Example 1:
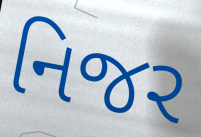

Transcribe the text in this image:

નિજર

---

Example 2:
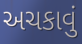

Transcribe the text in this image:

અચકાવું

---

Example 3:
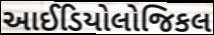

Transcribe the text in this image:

આઈડિયોલોજિકલ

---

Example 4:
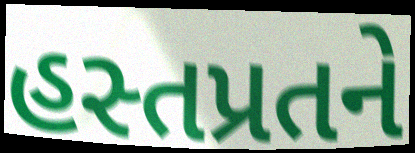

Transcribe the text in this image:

હસ્તપ્રતને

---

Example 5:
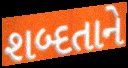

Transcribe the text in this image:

શબ્દતાને